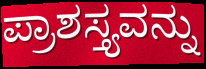
ಪ್ರಾಶಸ್ತ್ಯವನ್ನು